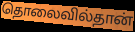
தொலைவில்தான்